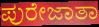
ಪುರೇಜಾತಾ